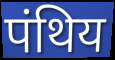
पंथिय